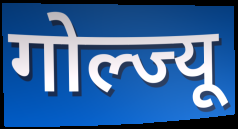
गोल्ज्यू